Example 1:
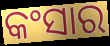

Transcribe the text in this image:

କଂସାର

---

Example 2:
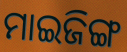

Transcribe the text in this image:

ମାଇଜିଙ୍ଗ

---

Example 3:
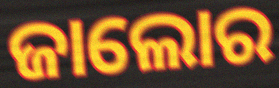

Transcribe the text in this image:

ଜାଲୋର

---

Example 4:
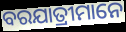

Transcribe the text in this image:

ବରଯାତ୍ରୀମାନେ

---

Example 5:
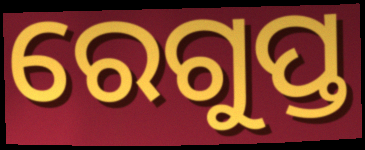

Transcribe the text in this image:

ରେଗୁପ୍ତ